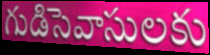
గుడిసెవాసులకు